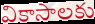
వికాసాలకు